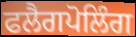
ਫਲੈਗਪੋਲਿੰਗ